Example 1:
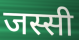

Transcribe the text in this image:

जस्सी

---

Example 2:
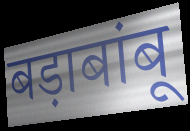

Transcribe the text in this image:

बड़ाबांबू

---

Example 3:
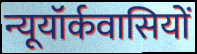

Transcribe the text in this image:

न्यूयॉर्कवासियों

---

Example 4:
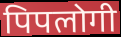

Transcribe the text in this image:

पिपलोगी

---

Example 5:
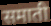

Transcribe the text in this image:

समाती